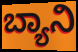
ಬ್ಯಾನಿ